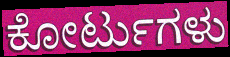
ಕೋರ್ಟುಗಳು